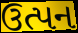
ઉત્પન